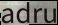
adru